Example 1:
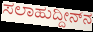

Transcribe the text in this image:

ಸಲಾಹುದ್ದೀನ್‍ನ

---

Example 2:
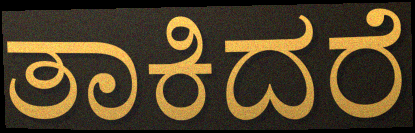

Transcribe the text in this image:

ತಾಕಿದರೆ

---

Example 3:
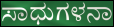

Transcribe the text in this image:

ಸಾಧುಗಳನಾ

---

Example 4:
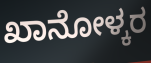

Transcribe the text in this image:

ಖಾನೋಳ್ಕರ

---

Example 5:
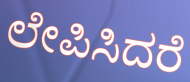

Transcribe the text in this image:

ಲೇಪಿಸಿದರೆ